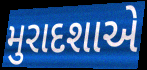
મુરાદશાએ